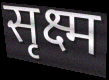
सृक्ष्म